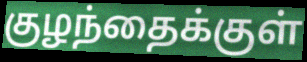
குழந்தைக்குள்